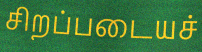
சிறப்படையச்